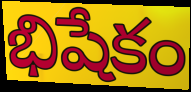
భిషేకం